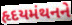
હૃદયમંથનને